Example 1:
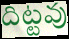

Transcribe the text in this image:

దిట్టవు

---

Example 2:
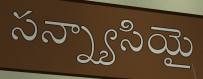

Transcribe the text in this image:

సన్న్యాసియై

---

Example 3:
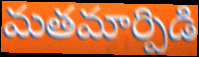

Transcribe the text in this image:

మతమార్పిడి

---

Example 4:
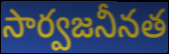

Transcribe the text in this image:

సార్వజనీనత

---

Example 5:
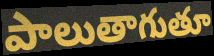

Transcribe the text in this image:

పాలుతాగుతూ